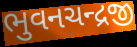
ભુવનચન્દ્રજી